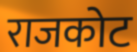
राजकोट